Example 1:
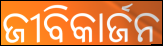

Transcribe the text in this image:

ଜୀବିକାର୍ଜନ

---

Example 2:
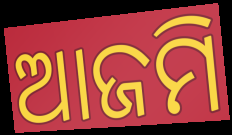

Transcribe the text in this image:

ଆଜମି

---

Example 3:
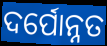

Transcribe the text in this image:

ଦର୍ପୋନ୍ନତ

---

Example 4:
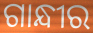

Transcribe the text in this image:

ଗାନ୍ଧୀର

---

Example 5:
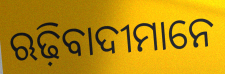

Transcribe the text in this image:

ଋଢ଼ିବାଦୀମାନେ